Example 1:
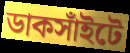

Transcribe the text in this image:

ডাকসাঁইটে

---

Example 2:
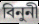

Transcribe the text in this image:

বিনুনী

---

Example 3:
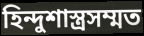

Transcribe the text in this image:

হিন্দুশাস্ত্রসম্মত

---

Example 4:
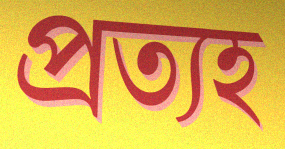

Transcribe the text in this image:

প্রত্যহ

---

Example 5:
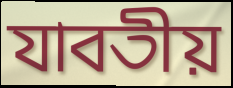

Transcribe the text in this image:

যাবতীয়